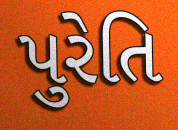
પુરેતિ